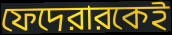
ফেদেরারকেই